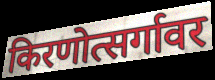
किरणोत्सर्गावर